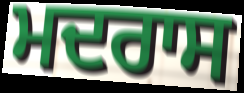
ਮਦਰਾਸ